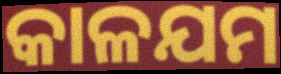
କାଳଯମ